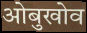
ओबुखोव